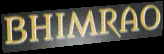
BHIMRAO